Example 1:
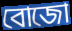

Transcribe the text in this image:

বোজো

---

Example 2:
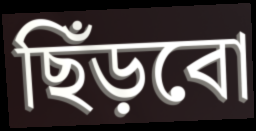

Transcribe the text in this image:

ছিঁড়বো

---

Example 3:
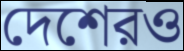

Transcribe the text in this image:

দেশেরও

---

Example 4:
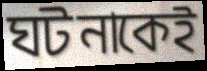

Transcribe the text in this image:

ঘটনাকেই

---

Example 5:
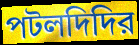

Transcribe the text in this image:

পটলদিদির